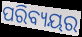
ପରିବ୍ୟୟର